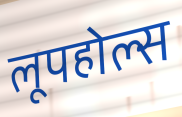
लूपहोल्स